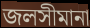
জলসীমানা